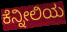
ಕೆನ್ನೀಲಿಯ